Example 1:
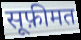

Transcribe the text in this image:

सूफ़ीमत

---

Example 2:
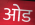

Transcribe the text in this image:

ओड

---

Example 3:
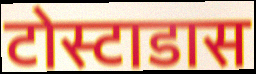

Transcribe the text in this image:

टोस्टाडास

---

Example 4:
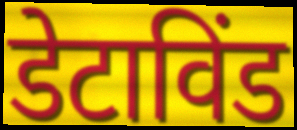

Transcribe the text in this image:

डेटाविंड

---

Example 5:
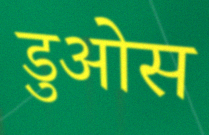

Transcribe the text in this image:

डुओस